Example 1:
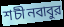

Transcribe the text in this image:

শচীনবাবুর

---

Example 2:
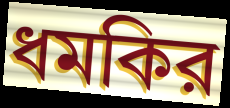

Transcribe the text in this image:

ধমকির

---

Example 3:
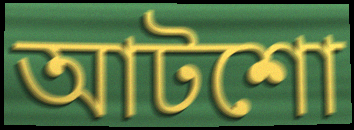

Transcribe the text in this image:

আটশো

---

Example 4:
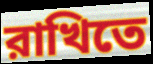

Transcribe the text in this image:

রাখিতে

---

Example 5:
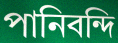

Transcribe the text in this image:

পানিবন্দি